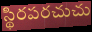
స్థిరపరచుచు